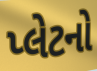
પ્લેટનો